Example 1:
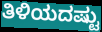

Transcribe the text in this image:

ತಿಳಿಯದಷ್ಟು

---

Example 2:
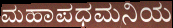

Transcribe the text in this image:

ಮಹಾಪಧಮನಿಯ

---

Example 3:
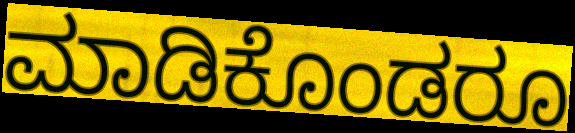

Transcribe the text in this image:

ಮಾಡಿಕೊಂಡರೂ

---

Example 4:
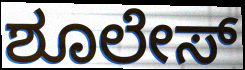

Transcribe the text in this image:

ಶೂಲೇಸ್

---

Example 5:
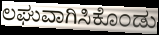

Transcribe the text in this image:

ಲಘುವಾಗಿಸಿಕೊಂಡು